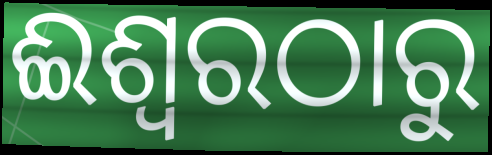
ଈଶ୍ୱରଠାରୁ